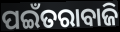
ପଇଁତରାବାଜି